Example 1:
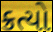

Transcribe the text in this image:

ક્રત્યો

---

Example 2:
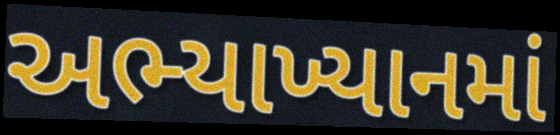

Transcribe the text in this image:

અભ્યાખ્યાનમાં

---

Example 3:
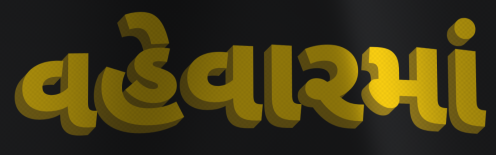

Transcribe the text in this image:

વહેવારમાં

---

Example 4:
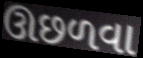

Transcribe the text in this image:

ઊછળવા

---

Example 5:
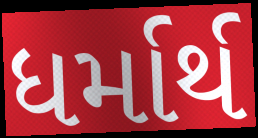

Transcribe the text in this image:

ધર્માર્થ